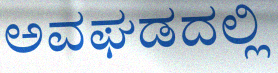
ಅವಘಡದಲ್ಲಿ